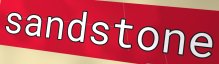
sandstone